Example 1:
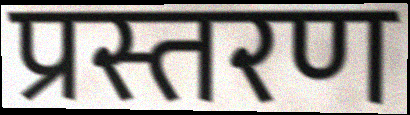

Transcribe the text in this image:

प्रस्तरण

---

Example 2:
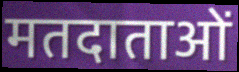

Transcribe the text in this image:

मतदाताओें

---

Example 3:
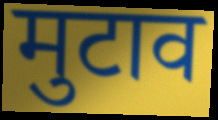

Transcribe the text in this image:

मुटाव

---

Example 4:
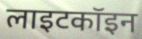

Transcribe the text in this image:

लाइटकॉइन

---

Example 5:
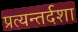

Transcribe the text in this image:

प्रत्यन्तर्दशा